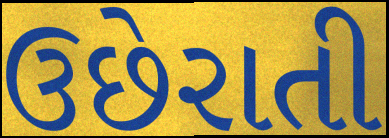
ઉછેરાતી